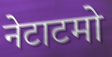
नेटाटमो